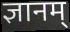
ज्ञानम्